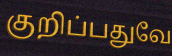
குறிப்பதுவே